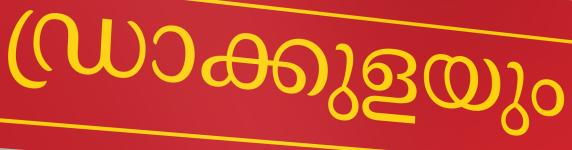
ഡ്രാക്കുളയും